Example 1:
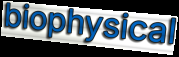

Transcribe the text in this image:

biophysical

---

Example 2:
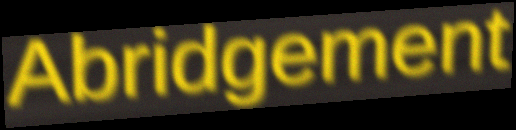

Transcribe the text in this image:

Abridgement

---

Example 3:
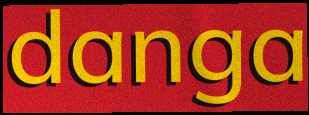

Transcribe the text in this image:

danga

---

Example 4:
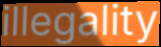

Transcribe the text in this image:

illegality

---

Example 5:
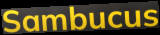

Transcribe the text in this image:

Sambucus